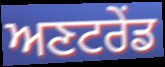
ਅਣਟਰੇਂਡ